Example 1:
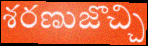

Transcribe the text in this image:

శరణుజొచ్చి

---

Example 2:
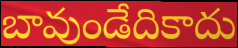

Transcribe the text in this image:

బావుండేదికాదు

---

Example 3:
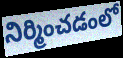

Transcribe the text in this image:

నిర్మించడంలో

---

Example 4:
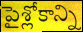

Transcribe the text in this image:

పైశ్లోకాన్ని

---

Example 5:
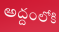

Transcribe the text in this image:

అద్దంలోకి